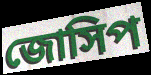
জোসিপ